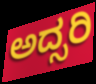
ಅದ್ಸರಿ